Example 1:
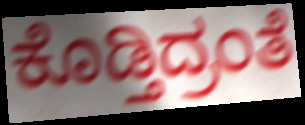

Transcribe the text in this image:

ಕೊಡ್ತಿದ್ರಂತೆ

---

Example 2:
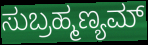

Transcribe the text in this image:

ಸುಬ್ರಹ್ಮಣ್ಯಮ್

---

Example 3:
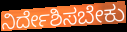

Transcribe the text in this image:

ನಿರ್ದೇಶಿಸಬೇಕು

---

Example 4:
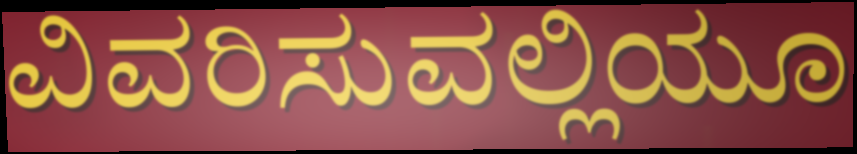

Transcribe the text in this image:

ವಿವರಿಸುವಲ್ಲಿಯೂ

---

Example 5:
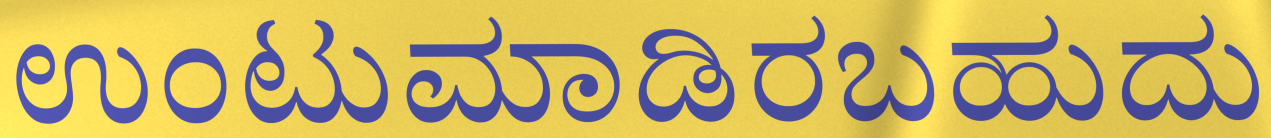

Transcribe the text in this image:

ಉಂಟುಮಾಡಿರಬಹುದು